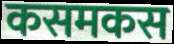
कसमकस